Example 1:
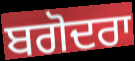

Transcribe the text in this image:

ਬਗੋਦਰਾ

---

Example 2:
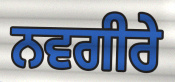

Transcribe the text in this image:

ਨਵਗੀਰੇ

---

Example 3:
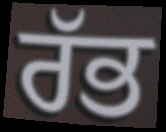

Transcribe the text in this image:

ਰੱਭ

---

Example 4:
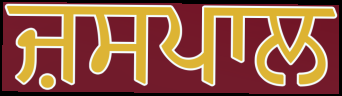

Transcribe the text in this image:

ਜ਼ਸਪਾਲ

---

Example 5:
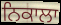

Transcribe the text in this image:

ਨਿਕਾਲਾ